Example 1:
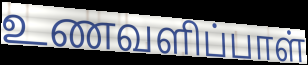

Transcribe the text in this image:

உணவளிப்பாள்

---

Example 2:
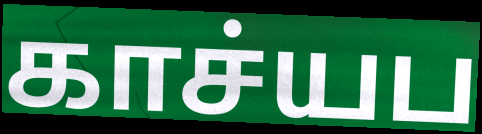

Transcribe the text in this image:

காச்யப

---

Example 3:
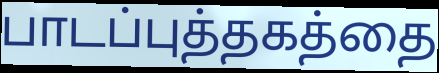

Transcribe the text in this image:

பாடப்புத்தகத்தை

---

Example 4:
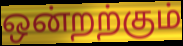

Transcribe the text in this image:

ஒன்றற்கும்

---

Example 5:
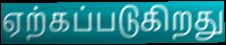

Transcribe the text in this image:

ஏற்கப்படுகிறது